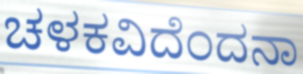
ಚಳಕವಿದೆಂದನಾ